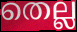
തെല്ല